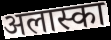
अलास्का